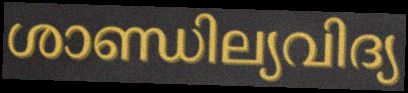
ശാണ്ഡില്യവിദ്യ